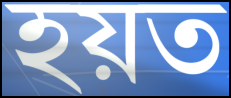
হয়ত